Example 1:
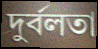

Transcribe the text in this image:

দুৰ্বলতা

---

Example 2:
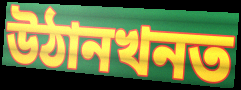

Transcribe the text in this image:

উঠানখনত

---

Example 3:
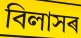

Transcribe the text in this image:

বিলাসৰ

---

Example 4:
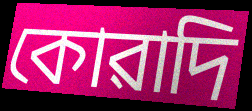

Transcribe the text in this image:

কোৱাদি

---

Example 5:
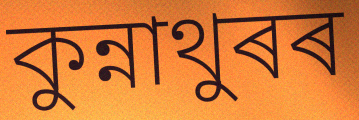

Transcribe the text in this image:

কুন্নাথুৰৰ